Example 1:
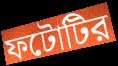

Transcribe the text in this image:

ফটোটির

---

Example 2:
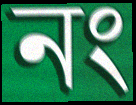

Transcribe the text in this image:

নং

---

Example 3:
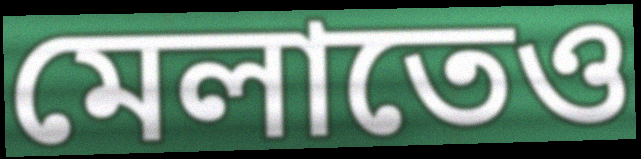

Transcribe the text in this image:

মেলাতেও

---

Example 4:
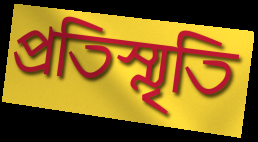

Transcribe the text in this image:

প্রতিস্মৃতি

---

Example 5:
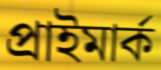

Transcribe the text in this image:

প্রাইমার্ক